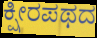
ಕ್ಷೀರಪಥದ